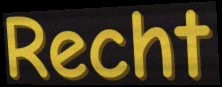
Recht